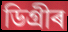
ডিগ্ৰীৰ